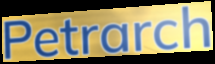
Petrarch